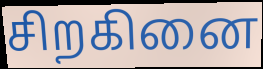
சிறகினை